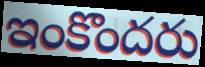
ఇంకొందరు